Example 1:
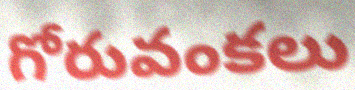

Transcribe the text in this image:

గోరువంకలు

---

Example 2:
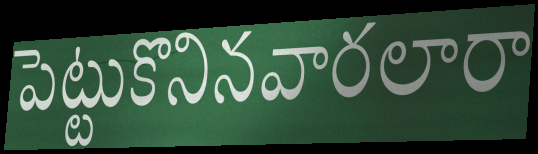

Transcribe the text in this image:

పెట్టుకొనినవారలారా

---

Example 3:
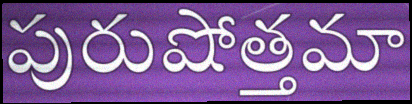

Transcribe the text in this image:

పురుషోత్తమా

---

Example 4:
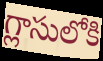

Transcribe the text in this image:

గ్లాసులోకి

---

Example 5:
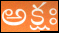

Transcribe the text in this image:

అక్షః